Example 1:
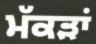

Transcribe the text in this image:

ਮੱਕੜਾਂ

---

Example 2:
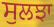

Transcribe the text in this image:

ਸੁਲਝਾ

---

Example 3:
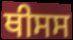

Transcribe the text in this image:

ਥੀਸਸ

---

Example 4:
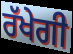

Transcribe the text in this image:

ਰੱਖੇਗੀ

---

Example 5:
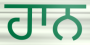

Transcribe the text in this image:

ਹਾਨ